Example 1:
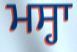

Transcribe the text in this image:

ਮਸ੍ਹਾ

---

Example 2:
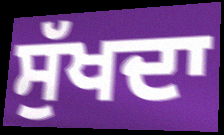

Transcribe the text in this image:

ਸੁੱਖਦਾ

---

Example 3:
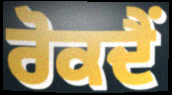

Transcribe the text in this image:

ਰੋਕਦੈਂ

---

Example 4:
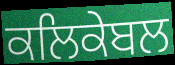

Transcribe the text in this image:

ਕਲਿਕੇਬਲ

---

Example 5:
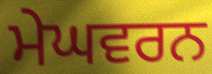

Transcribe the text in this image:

ਮੇਘਵਰਨ